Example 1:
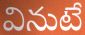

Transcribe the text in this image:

వినుటే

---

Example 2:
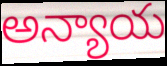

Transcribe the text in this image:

అన్యాయ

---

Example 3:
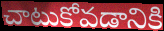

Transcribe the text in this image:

చాటుకోవడానికి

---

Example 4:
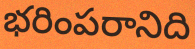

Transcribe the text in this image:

భరింపరానిది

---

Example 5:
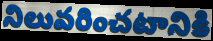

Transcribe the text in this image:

నిలువరించటానికి